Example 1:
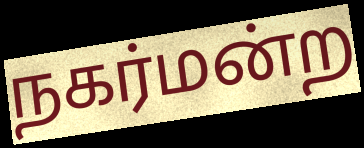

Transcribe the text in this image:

நகர்மன்ற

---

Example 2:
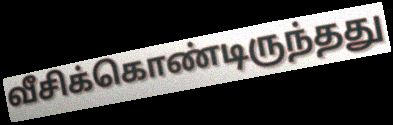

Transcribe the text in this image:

வீசிக்கொண்டிருந்தது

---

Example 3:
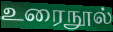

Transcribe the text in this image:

உரைநூல்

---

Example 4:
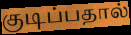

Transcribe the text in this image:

குடிப்பதால்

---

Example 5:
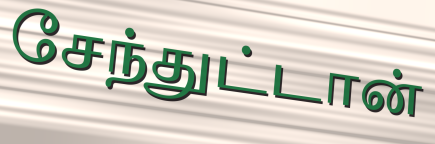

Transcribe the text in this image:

சேந்துட்டான்